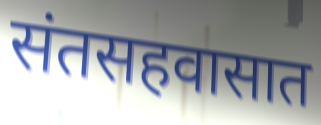
संतसहवासात